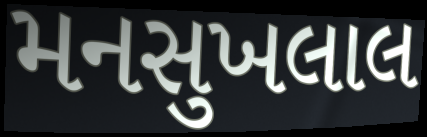
મનસુખલાલ